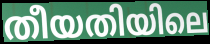
തീയതിയിലെ